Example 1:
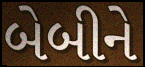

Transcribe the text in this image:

બેબીને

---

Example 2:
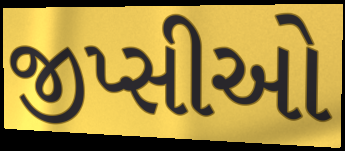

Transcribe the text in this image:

જીપ્સીઓ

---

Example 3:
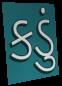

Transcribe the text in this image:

કડું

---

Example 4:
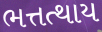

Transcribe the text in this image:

ભત્તત્થાય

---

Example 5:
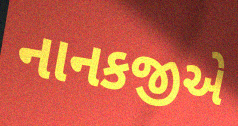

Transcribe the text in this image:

નાનકજીએ